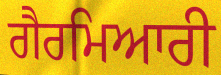
ਗੈਰਮਿਆਰੀ